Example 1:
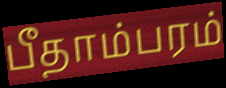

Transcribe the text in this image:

பீதாம்பரம்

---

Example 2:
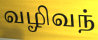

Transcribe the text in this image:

வழிவந்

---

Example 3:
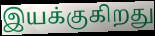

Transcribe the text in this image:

இயக்குகிறது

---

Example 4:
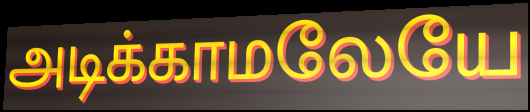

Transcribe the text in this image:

அடிக்காமலேயே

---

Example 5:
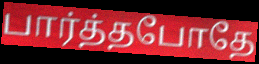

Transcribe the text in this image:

பார்த்தபோதே